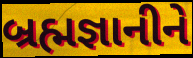
બ્રહ્મજ્ઞાનીને